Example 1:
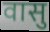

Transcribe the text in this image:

वासु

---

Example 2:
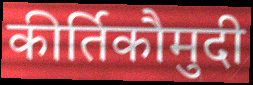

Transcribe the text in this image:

कीर्तिकौमुदी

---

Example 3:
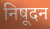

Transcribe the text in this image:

निषूदन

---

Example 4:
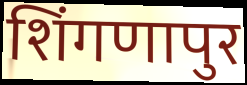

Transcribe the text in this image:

शिंगणापुर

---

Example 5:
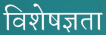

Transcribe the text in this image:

विशेषज्ञता